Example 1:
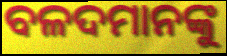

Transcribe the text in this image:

ବଳଦମାନଙ୍କୁ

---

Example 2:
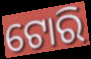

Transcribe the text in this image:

ଟୋରି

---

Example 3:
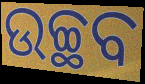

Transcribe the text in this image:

ଉଚ୍ଛବ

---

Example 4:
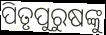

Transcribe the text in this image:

ପିତୃପୁରୁଷଙ୍କୁ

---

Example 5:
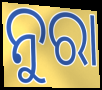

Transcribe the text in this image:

ନୁରା